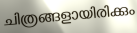
ചിത്രങ്ങളായിരിക്കും